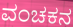
ವಂಚಕನ